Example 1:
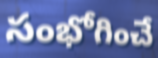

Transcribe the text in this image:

సంభోగించే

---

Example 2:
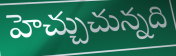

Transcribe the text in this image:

హెచ్చుచున్నది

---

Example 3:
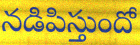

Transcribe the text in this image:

నడిపిస్తుందో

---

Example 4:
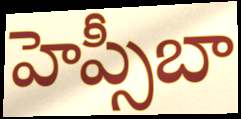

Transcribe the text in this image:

హెప్సీబా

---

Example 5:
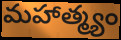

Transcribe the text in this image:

మహాత్మ్యం